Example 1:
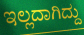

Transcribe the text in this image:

ಇಲ್ಲದಾಗಿದ್ದು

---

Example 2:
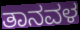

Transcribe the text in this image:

ತಾನವಳ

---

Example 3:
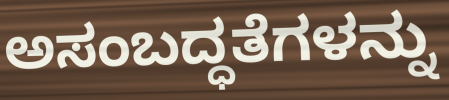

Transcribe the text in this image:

ಅಸಂಬದ್ಧತೆಗಳನ್ನು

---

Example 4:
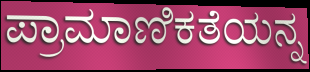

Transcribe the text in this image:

ಪ್ರಾಮಾಣಿಕತೆಯನ್ನ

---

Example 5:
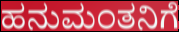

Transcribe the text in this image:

ಹನುಮಂತನಿಗೆ